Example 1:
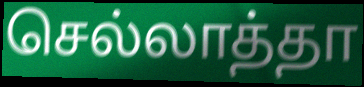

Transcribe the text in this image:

செல்லாத்தா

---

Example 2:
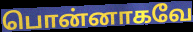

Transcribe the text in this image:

பொன்னாகவே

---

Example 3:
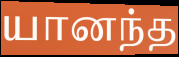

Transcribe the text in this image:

யானந்த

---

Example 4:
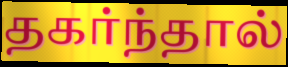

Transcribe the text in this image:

தகர்ந்தால்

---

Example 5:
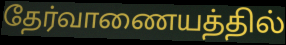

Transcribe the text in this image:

தேர்வாணையத்தில்